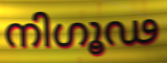
നിഗൂഢ